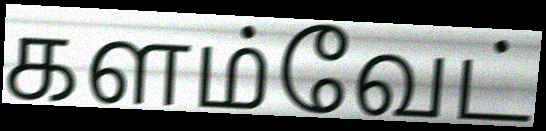
களம்வேட்